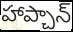
హాప్చాన్